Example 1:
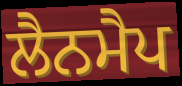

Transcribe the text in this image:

ਲੈਨਮੈਪ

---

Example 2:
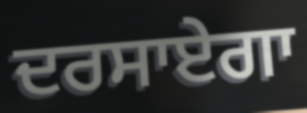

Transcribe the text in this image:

ਦਰਸਾਏਗਾ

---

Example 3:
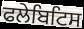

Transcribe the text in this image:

ਫਲੇਬਿਟਿਸ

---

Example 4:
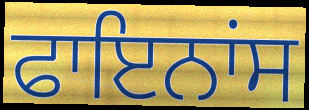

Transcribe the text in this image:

ਫਾਇਨਾਂਸ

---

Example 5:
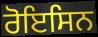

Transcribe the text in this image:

ਰੋਇਸਿਨ